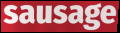
sausage